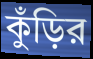
কুঁড়ির